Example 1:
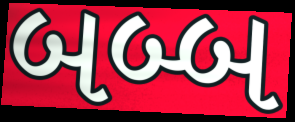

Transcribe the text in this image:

બબ્બ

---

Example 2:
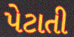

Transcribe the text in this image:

પેટાતી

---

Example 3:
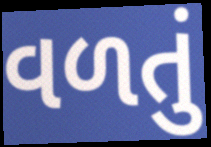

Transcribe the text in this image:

વળતું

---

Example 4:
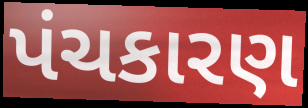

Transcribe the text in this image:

પંચકારણ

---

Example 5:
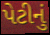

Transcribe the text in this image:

પેટીનું